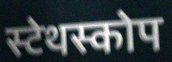
स्टेथस्कोप